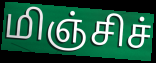
மிஞ்சிச்